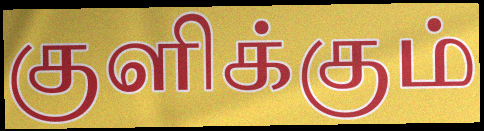
குளிக்கும்